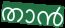
താൻ